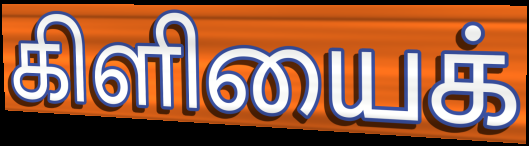
கிளியைக்